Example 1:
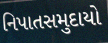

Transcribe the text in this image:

નિપાતસમુદાયો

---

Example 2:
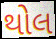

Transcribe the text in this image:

થોલ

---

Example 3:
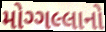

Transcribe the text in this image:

મોગ્ગલ્લાનો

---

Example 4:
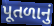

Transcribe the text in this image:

પૂતળાનું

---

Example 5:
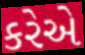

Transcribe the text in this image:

કરેએ